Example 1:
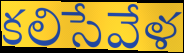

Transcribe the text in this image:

కలిసేవేళ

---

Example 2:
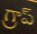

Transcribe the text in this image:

గ్రాప్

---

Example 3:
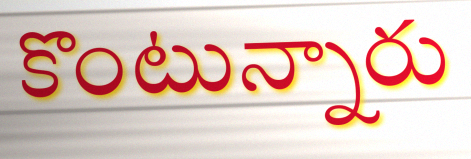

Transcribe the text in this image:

కొంటున్నారు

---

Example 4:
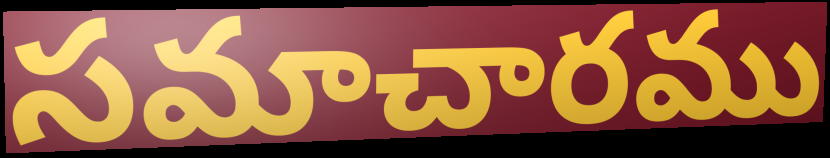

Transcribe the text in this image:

సమాచారము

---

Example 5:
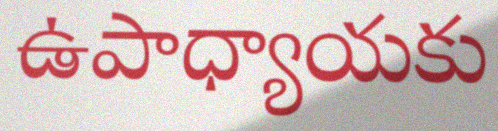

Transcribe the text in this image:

ఉపాధ్యాయకు